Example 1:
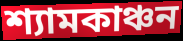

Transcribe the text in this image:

শ্যামকাঞ্চন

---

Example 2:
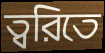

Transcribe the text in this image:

ত্বরিতে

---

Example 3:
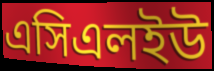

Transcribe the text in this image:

এসিএলইউ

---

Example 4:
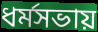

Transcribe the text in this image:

ধর্মসভায়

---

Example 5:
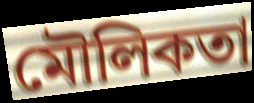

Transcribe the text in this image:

মৌলিকতা